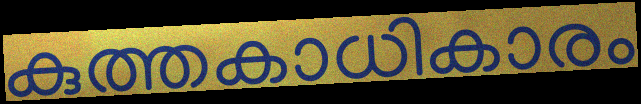
കുത്തകാധികാരം